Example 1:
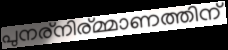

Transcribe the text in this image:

പുനര്നിര്മ്മാണത്തിന്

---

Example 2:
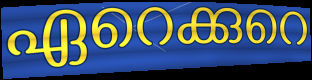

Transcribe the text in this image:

ഏറെക്കുറെ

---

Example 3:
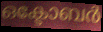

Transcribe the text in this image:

ഒക്ടോബർ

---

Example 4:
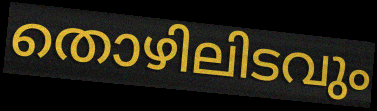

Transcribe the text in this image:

തൊഴിലിടവും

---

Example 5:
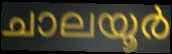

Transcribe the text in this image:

ചാലയൂർ